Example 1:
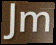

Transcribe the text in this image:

Jm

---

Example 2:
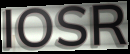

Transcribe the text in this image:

IOSR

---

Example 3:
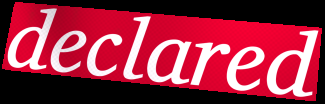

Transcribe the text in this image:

declared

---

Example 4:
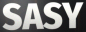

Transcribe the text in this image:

SASY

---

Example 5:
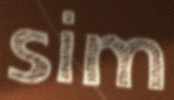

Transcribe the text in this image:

sim